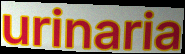
urinaria